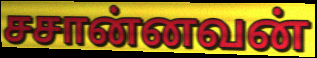
சசான்னவன்